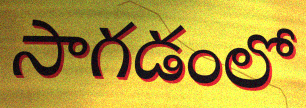
సాగడంలో